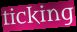
ticking